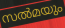
സൽമയും